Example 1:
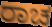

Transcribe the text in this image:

ರಾಚ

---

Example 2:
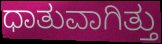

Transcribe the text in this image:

ಧಾತುವಾಗಿತ್ತು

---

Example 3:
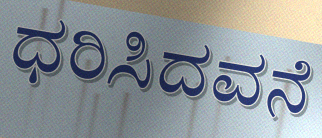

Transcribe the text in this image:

ಧರಿಸಿದವನೆ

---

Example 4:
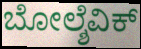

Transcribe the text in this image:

ಬೋಲ್ಶೆವಿಕ್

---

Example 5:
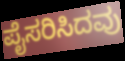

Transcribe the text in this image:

ಪೈಸರಿಸಿದವು